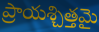
ప్రాయశ్చిత్తమై